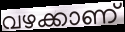
വഴക്കാണ്